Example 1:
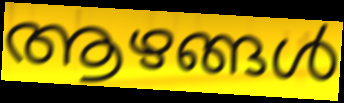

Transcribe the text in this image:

ആഴങ്ങൾ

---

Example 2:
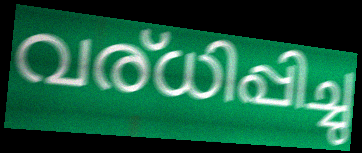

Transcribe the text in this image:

വര്ധിപ്പിച്ചു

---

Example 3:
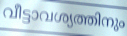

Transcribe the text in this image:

വീട്ടാവശ്യത്തിനും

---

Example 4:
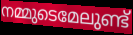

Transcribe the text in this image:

നമ്മുടെമേലുണ്ട്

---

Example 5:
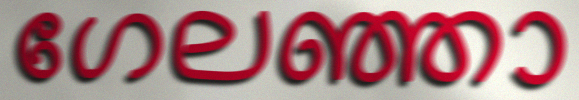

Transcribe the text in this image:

ഗേലഞ്ഞാ